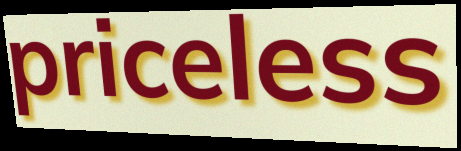
priceless